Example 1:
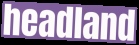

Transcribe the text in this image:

headland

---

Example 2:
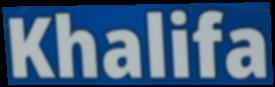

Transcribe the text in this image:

Khalifa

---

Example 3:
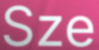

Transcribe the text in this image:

Sze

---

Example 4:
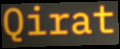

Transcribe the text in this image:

Qirat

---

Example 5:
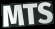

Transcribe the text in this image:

MTS